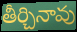
తీర్చినావు